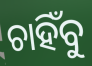
ଚାହିଁବୁ